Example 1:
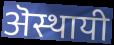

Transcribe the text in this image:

ऄस्थायी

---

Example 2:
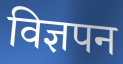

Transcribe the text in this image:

विज्ञपन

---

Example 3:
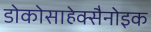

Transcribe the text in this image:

डोकोसाहेक्सैनोइक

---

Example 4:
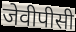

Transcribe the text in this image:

जेवीपीसी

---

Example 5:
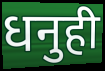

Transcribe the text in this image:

धनुही